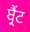
ਬ੍ਰੈਂਟ